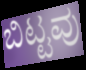
ಬಿಟ್ಟವು